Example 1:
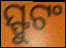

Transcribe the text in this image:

ସ୍ଫୁଟଂ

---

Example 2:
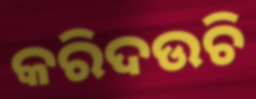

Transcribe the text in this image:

କରିଦଉଚି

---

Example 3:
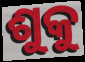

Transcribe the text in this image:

ଶୁକୁ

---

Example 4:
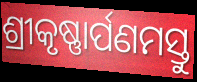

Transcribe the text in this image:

ଶ୍ରୀକୃଷ୍ଣାର୍ପଣମସ୍ତୁ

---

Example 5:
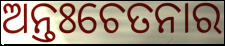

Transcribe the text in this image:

ଅନ୍ତଃଚେତନାର